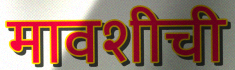
मावशीची